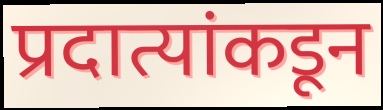
प्रदात्यांकडून